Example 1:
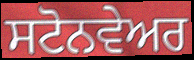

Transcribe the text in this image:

ਸਟੋਨਵੇਅਰ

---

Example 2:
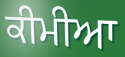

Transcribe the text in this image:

ਕੀਮੀਆ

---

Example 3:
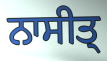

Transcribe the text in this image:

ਨਾਸੀਤ੍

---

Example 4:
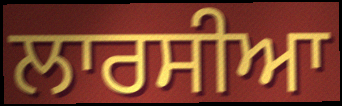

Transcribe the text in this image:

ਲਾਰਸੀਆ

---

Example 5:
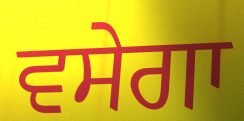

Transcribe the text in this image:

ਵਸੇਗਾ